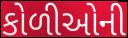
કોળીઓની